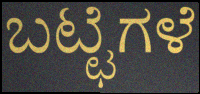
ಬಟ್ಟೆಗಳೆ